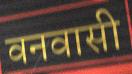
वनवासी